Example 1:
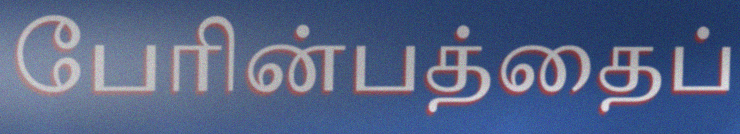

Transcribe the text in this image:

பேரின்பத்தைப்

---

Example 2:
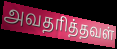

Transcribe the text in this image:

அவதரித்தவள்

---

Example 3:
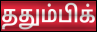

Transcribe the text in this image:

ததும்பிக்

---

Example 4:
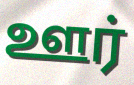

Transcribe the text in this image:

ஊர்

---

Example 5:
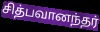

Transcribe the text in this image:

சித்பவானந்தர்